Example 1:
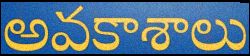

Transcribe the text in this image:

అవకాశాలు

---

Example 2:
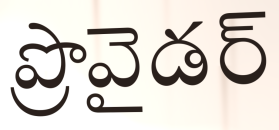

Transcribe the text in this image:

ప్రొవైడర్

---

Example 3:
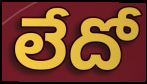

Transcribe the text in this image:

లేదో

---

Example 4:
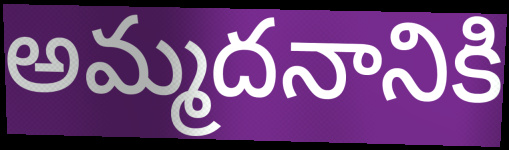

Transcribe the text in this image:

అమ్మదనానికి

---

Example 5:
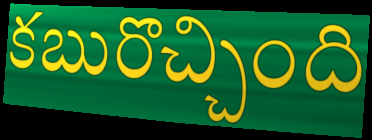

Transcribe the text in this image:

కబురొచ్చింది